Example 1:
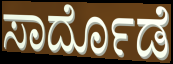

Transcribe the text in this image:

ಸಾರ್ದೊಡೆ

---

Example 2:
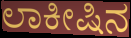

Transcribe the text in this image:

ಲಾಕೀಷಿನ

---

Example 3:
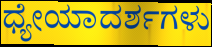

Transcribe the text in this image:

ಧ್ಯೇಯಾದರ್ಶಗಳು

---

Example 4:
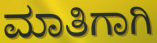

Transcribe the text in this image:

ಮಾತಿಗಾಗಿ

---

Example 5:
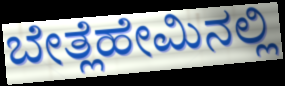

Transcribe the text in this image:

ಬೇತ್ಲೆಹೇಮಿನಲ್ಲಿ